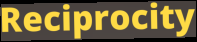
Reciprocity